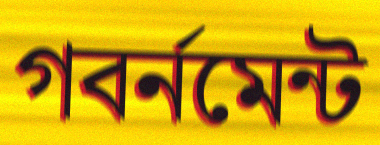
গবর্নমেন্ট